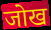
जोख